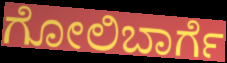
ಗೋಲಿಬಾರ್ಗೆ